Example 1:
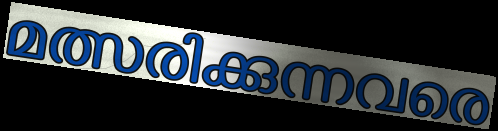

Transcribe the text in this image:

മത്സരിക്കുന്നവരെ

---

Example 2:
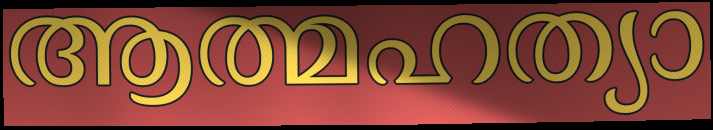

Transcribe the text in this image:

ആത്മഹത്യാ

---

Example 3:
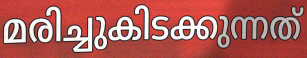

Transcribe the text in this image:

മരിച്ചുകിടക്കുന്നത്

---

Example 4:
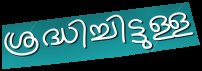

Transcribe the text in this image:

ശ്രദ്ധിച്ചിട്ടുള്ള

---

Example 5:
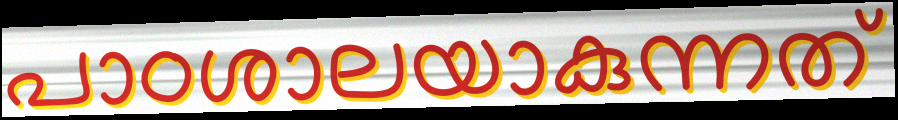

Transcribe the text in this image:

പാഠശാലയാകുന്നത്